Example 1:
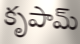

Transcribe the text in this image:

కృపామ్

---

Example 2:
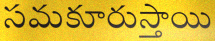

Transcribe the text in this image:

సమకూరుస్తాయి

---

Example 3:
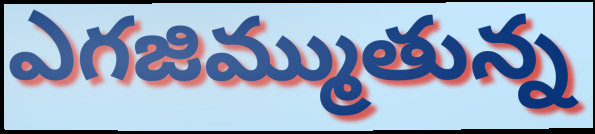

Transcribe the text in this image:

ఎగజిమ్ముతున్న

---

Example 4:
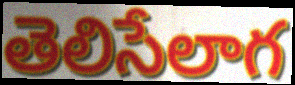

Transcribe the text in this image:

తెలిసేలాగ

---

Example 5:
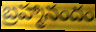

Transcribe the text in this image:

బ్రహ్మానందం